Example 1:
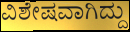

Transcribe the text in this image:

ವಿಶೇಷವಾಗಿದ್ದು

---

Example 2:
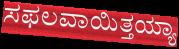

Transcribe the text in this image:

ಸಫಲವಾಯಿತ್ತಯ್ಯಾ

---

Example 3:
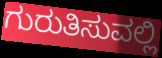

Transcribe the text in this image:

ಗುರುತಿಸುವಲ್ಲಿ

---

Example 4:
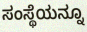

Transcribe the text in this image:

ಸಂಸ್ಥೆಯನ್ನೂ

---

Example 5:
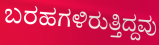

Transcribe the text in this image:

ಬರಹಗಳಿರುತ್ತಿದ್ದವು